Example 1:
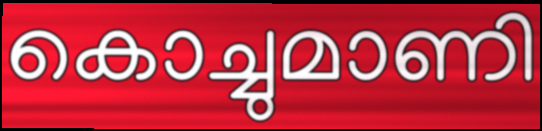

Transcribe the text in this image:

കൊച്ചുമാണി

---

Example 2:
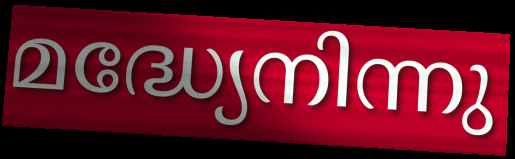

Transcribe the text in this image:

മദ്ധ്യേനിന്നു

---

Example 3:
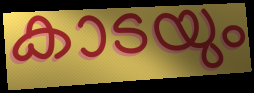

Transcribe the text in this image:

കാടയും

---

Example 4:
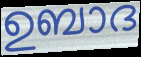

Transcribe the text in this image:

ഉബാദ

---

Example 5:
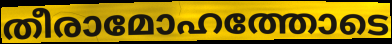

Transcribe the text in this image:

തീരാമോഹത്തോടെ